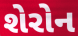
શેરોન